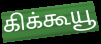
கிக்கூயூ